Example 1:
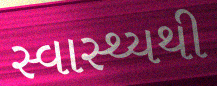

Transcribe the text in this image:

સ્વાસ્થ્યથી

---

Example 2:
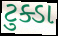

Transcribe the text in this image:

ટુક્ડા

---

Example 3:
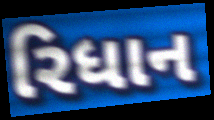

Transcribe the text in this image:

રિધાન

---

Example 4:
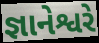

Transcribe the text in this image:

જ્ઞાનેશ્વરે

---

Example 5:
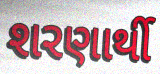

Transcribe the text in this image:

શરણાર્થી